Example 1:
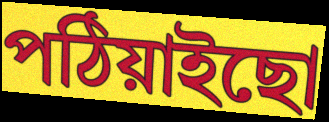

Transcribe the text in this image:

পঠিয়াইছো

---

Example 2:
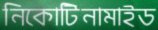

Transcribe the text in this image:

নিকোটিনামাইড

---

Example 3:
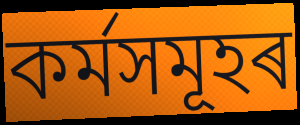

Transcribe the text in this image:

কৰ্মসমূহৰ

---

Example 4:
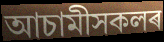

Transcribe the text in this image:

আচামীসকলৰ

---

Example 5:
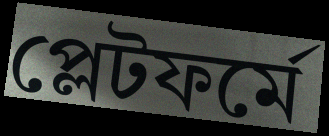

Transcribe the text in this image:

প্লেটফৰ্মে